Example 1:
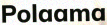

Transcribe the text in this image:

Polaama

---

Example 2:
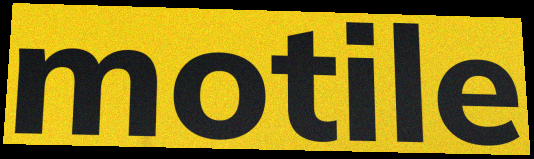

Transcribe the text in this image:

motile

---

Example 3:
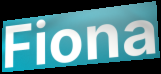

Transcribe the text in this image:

Fiona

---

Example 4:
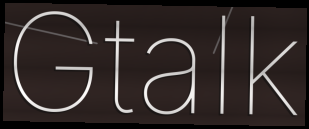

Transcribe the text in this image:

Gtalk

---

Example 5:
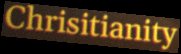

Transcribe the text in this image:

Chrisitianity